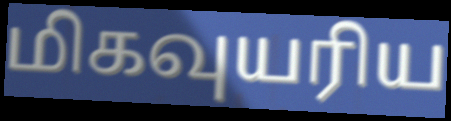
மிகவுயரிய